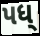
પધ્